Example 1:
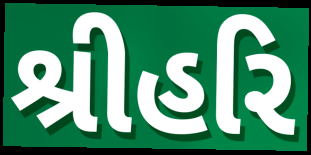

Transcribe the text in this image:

શ્રીહરિ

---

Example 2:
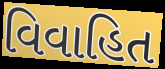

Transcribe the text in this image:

વિવાહિત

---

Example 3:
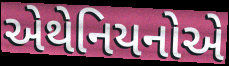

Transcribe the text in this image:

એથેનિયનોએ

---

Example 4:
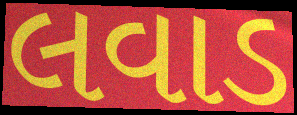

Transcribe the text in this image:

લવાડ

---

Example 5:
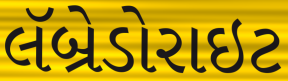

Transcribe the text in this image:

લૅબ્રેડોરાઇટ